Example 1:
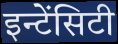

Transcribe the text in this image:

इन्टेंसिटी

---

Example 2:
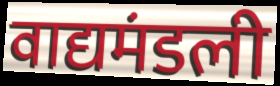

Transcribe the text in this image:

वाद्यमंडली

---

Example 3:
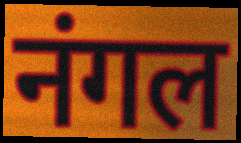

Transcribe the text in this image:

नंगल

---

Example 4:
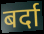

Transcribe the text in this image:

बर्दा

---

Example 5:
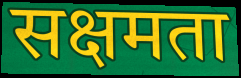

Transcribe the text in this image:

सक्षमता